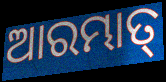
ଆରମ୍ଭାତ୍